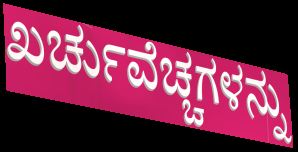
ಖರ್ಚುವೆಚ್ಚಗಳನ್ನು